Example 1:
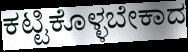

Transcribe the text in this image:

ಕಟ್ಟಿಕೊಳ್ಳಬೇಕಾದ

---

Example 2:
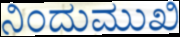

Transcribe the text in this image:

ನಿಂದುಮುಖಿ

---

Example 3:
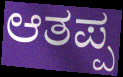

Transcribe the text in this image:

ಆತಪ್ಪ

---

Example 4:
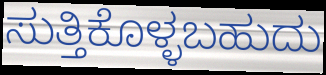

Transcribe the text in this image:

ಸುತ್ತಿಕೊಳ್ಳಬಹುದು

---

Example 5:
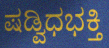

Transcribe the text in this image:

ಷಡ್ವಿಧಭಕ್ತಿ